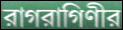
রাগরাগিণীর